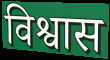
विश्वास